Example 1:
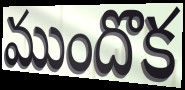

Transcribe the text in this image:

ముందొక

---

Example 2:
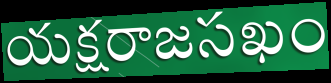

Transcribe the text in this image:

యక్షరాజసఖం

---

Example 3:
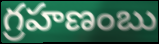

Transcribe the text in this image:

గ్రహణంబు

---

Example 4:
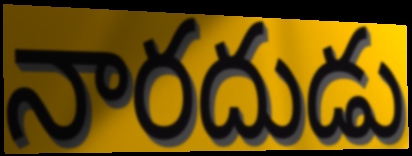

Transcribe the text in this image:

నారదుడు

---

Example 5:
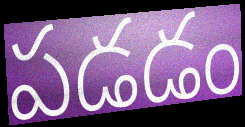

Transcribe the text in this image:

పడడం